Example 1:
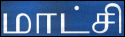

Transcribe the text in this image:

மாட்சி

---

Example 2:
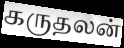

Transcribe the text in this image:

கருதலன்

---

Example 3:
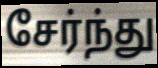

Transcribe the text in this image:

சேர்ந்து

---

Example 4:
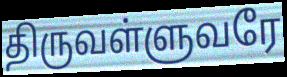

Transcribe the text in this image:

திருவள்ளுவரே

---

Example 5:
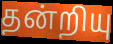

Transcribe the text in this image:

தன்றியு